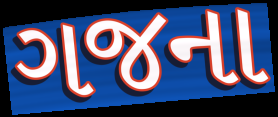
ગજના